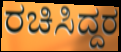
ರಚಿಸಿದ್ದರ